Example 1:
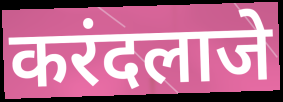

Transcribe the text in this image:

करंदलाजे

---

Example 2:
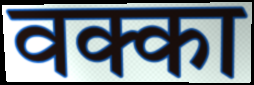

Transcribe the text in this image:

वक्का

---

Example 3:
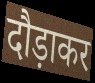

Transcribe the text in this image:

दौड़ाकर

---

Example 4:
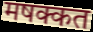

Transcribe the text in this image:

मषक्कत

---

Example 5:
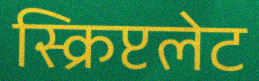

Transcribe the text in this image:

स्क्रिप्टलेट